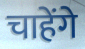
चाहेंगे